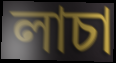
লাচা